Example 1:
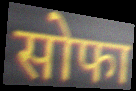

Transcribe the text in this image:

सोफा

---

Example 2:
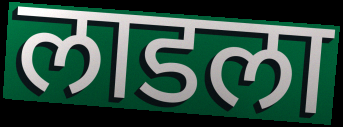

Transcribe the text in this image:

लाडला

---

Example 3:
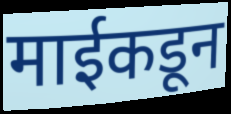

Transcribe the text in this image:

माईकडून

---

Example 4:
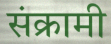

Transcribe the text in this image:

संक्रामी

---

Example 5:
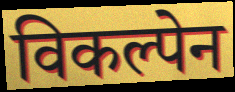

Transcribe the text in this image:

विकल्पेन